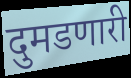
दुमडणारी